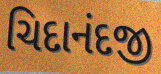
ચિદાનંદજી